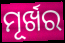
ମୂର୍ଖର